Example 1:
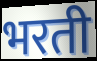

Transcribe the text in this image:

भरती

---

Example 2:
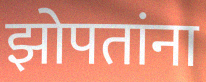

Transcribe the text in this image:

झोपतांना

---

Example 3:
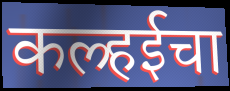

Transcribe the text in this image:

कल्हईचा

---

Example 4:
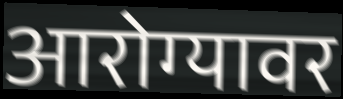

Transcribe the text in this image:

आरोग्यावर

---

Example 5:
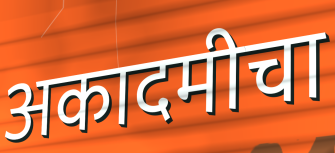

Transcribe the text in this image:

अकादमीचा